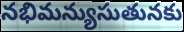
నభిమన్యుసుతునకు